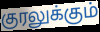
குரலுக்கும்